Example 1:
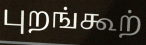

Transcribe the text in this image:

புறங்கூற்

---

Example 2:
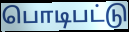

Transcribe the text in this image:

பொடிபட்டு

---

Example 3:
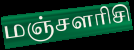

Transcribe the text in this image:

மஞ்சளரிசி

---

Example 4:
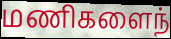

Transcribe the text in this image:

மணிகளைந்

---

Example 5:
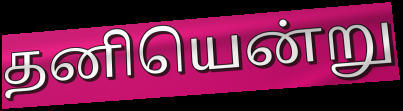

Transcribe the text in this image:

தனியென்று